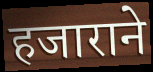
हजाराने